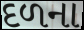
દળના